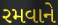
રમવાને